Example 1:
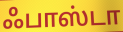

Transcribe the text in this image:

ஃபாஸ்டா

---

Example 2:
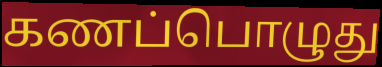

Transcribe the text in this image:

கணப்பொழுது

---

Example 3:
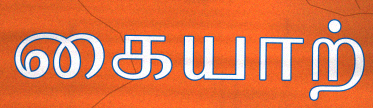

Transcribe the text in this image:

கையாற்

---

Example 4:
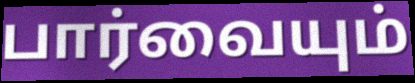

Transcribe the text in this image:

பார்வையும்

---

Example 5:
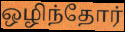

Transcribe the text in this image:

ஒழிந்தோர்